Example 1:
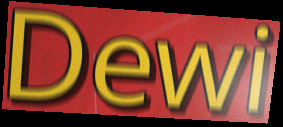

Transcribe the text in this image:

Dewi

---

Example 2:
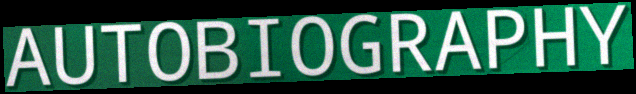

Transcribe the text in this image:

AUTOBIOGRAPHY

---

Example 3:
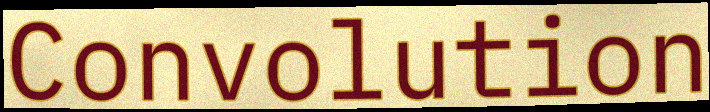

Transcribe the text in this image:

Convolution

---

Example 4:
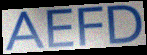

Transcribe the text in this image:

AEFD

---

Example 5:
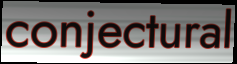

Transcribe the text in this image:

conjectural